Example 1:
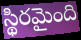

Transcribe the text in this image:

స్థిరమైంది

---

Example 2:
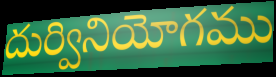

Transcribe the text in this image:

దుర్వినియోగము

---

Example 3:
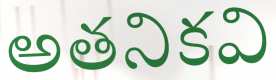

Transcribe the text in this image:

అతనికవి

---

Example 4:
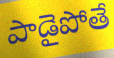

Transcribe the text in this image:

పాడైపోతే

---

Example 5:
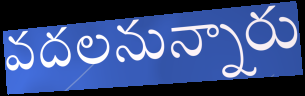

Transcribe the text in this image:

వదలనున్నారు